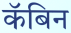
कॅबिन